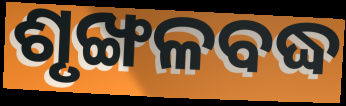
ଶୃଙ୍ଖଳବଦ୍ଧ